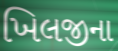
ખિલજીના